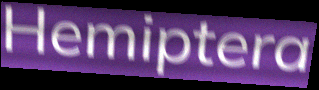
Hemiptera